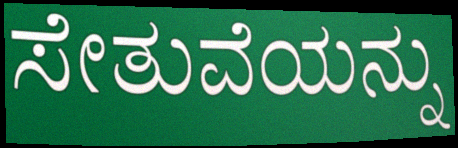
ಸೇತುವೆಯನ್ನು